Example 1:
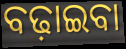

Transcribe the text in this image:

ବଢ଼ାଇବା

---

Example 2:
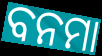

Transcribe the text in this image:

ବନମା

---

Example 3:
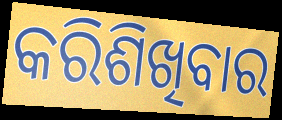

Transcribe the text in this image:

କରିଶିଖିବାର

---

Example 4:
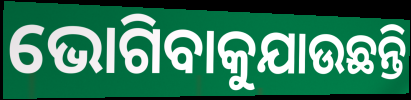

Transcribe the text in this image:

ଭୋଗିବାକୁଯାଉଛନ୍ତି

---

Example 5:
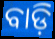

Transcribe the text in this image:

ବାଡ଼ି